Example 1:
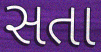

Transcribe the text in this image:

સતા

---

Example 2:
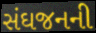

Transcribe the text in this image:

સંઘજનની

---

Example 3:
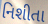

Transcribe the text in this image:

નિશીતા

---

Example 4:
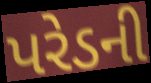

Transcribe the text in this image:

પરેડની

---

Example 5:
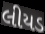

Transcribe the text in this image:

લીયડ